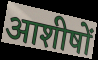
आशीषों